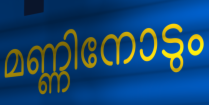
മണ്ണിനോടും